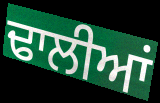
ਢਾਲੀਆਂ